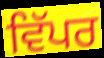
ਵਿੱਪਰ